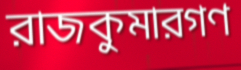
রাজকুমারগণ